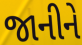
જાનીને